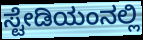
ಸ್ಟೇಡಿಯಂನಲ್ಲಿ